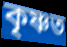
কৃষ্ণত